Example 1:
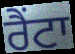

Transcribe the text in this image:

ਰੈਂਟਾ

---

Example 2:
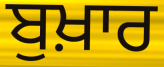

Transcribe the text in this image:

ਬੁਖ਼ਾਰ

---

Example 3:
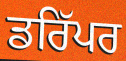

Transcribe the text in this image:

ਡਰਿੱਪਰ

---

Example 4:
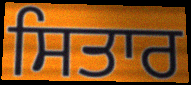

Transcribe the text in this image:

ਸਿਤਾਰ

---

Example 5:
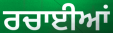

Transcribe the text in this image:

ਰਚਾਈਆਂ